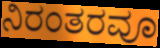
ನಿರಂತರವೂ